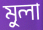
মুলা